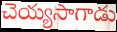
చెయ్యసాగాడు